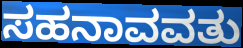
ಸಹನಾವವತು